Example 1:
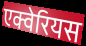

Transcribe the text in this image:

एक्वेरियस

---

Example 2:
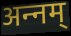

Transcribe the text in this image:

अन्नम्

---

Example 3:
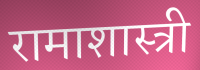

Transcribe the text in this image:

रामाशास्त्री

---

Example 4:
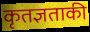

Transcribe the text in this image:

कृतज्ञताकी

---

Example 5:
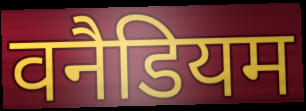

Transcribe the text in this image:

वनैडियम